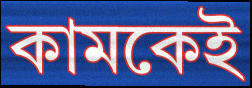
কামকেই